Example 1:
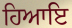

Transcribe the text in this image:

ਹਿਆਇ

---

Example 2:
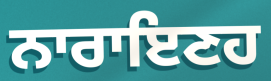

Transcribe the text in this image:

ਨਾਰਾਇਣਹ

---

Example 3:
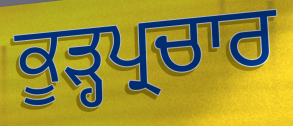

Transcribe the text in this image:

ਕੂੜ੍ਹਪ੍ਰਚਾਰ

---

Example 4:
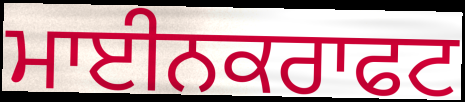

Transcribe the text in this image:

ਮਾਈਨਕਰਾਫਟ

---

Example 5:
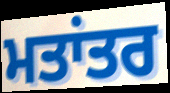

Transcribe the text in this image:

ਮਤਾਂਤਰ